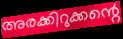
അരക്കിറുക്കന്റെ